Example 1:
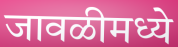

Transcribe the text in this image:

जावळीमध्ये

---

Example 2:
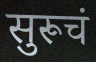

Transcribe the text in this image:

सुरूचं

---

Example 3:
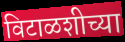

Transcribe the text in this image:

विटाळशीच्या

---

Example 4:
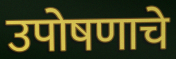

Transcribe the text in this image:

उपोषणाचे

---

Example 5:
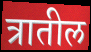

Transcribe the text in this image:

त्रातील